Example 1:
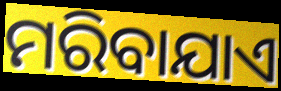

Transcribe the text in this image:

ମରିବାଯାଏ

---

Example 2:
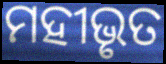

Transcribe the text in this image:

ମହୀଭୃତ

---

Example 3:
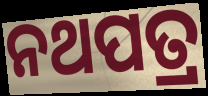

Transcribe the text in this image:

ନଥପତ୍ର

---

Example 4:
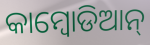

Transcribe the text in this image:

କାମ୍ବୋଡିଆନ୍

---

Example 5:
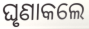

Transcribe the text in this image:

ଘୃଣାକଲେ